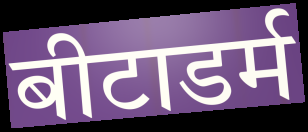
बीटाडर्म